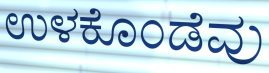
ಉಳಕೊಂಡೆವು